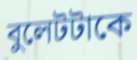
বুলেটটাকে